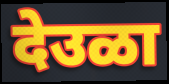
देउळा